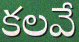
కలవే